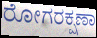
ರೋಗರಕ್ಷಣಾ